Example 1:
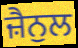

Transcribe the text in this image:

ਜ਼ੈਨੁਲ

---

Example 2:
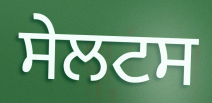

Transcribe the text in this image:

ਸੇਲਟਸ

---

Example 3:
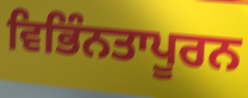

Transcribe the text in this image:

ਵਿਭਿੰਨਤਾਪੂਰਨ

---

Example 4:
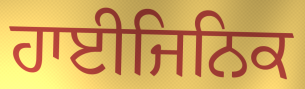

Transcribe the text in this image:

ਹਾਈਜਿਨਿਕ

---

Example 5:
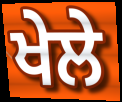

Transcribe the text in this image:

ਖੇਲੇ